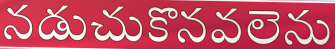
నడుచుకొనవలెను